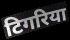
टिगरिया